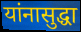
यांनासुद्धा